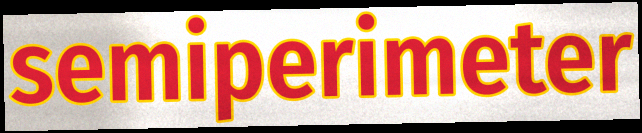
semiperimeter